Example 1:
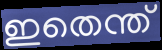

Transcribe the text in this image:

ഇതെന്ത്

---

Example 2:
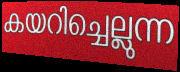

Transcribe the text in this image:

കയറിച്ചെല്ലുന്ന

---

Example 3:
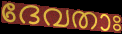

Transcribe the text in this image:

ദേവതാഃ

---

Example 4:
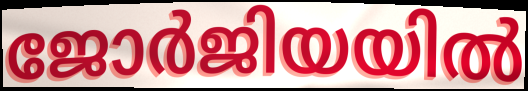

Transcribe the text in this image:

ജോർജിയയിൽ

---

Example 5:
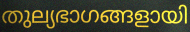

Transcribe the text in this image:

തുല്യഭാഗങ്ങളായി